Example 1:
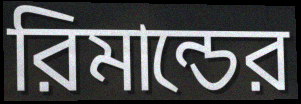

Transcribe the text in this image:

রিমান্ডের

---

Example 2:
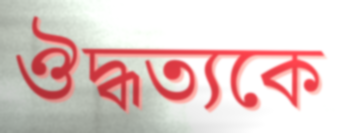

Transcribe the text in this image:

ঔদ্ধত্যকে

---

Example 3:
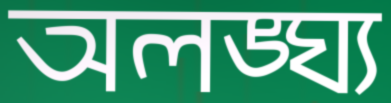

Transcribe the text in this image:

অলঙ্ঘ্য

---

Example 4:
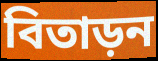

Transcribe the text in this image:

বিতাড়ন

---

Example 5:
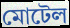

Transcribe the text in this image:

মোটেল